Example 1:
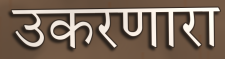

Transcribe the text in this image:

उकरणारा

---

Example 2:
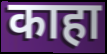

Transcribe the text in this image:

काहा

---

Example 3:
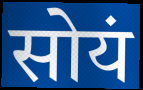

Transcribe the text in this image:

सोयं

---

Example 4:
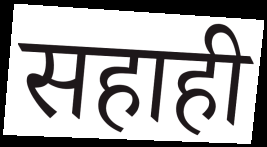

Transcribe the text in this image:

सहाही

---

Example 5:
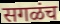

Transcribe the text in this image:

सगळंच